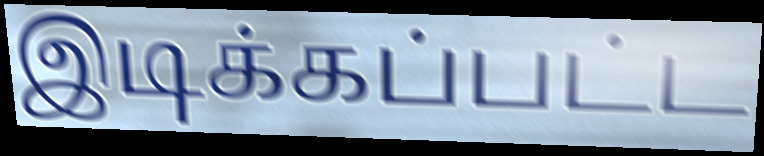
இடிக்கப்பட்ட